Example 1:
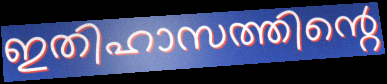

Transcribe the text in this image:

ഇതിഹാസത്തിന്റെ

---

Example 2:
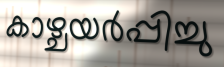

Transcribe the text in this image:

കാഴ്ചയർപ്പിച്ചു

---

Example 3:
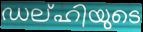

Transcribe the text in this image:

ഡല്ഹിയുടെ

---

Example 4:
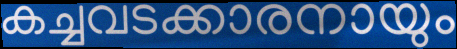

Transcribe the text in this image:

കച്ചവടക്കാരനായും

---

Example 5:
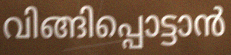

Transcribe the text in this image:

വിങ്ങിപ്പൊട്ടാൻ